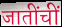
जातींचीं